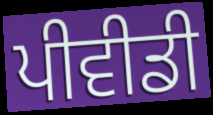
ਪੀਵੀਡੀ